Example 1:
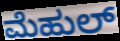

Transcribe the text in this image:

ಮೆಹುಲ್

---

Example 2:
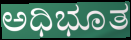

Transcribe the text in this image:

ಅಧಿಭೂತ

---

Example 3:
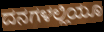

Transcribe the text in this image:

ದನಗಳಲ್ಲಿಯೂ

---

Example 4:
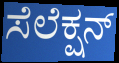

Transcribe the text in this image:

ಸೆಲೆಕ್ಷನ್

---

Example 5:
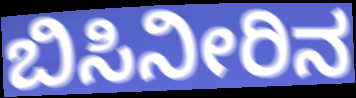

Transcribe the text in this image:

ಬಿಸಿನೀರಿನ